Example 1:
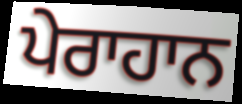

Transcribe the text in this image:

ਪੇਰਾਹਾਨ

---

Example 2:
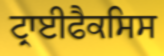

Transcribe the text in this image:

ਟ੍ਰਾਈਫੈਕਸਿਸ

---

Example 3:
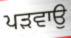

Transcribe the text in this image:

ਪੜਵਾਉ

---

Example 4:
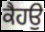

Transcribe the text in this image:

ਕੈਹਉ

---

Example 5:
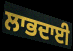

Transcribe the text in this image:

ਲਾਭਦਾਈ